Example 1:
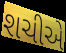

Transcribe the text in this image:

શચીએ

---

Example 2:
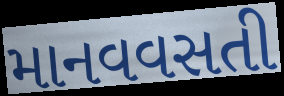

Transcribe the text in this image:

માનવવસતી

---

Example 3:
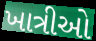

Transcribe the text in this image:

ખાત્રીઓ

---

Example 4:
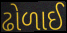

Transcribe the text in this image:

ઢોળાઈ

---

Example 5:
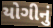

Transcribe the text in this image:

યોગીનું